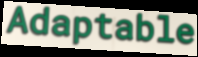
Adaptable